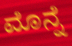
ಮೊನ್ನೆ